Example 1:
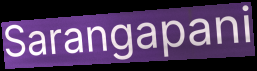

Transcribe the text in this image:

Sarangapani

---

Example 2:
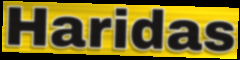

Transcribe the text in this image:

Haridas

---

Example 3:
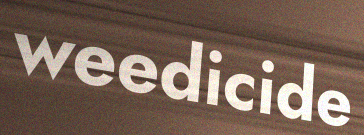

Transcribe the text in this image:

weedicide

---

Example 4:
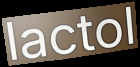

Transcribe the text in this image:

lactol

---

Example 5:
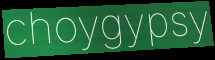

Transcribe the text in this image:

choygypsy